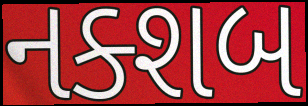
નક્શબ